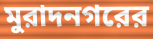
মুরাদনগরের